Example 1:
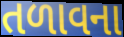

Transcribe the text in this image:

તળાવના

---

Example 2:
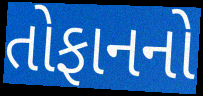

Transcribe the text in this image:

તોફાનનો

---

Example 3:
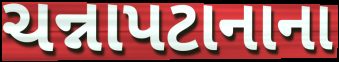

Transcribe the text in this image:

ચન્નાપટાનાના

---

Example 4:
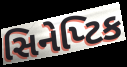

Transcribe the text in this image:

સિનેપ્ટિક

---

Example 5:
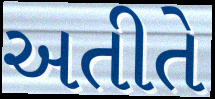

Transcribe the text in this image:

અતીતે